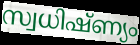
സ്വധിഷ്ണ്യം